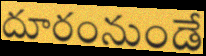
దూరంనుండే